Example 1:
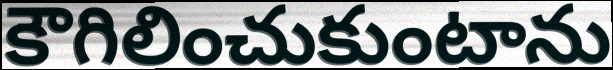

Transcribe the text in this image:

కౌగిలించుకుంటాను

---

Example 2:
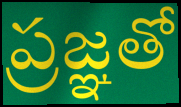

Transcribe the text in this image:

ప్రజ్ఞతో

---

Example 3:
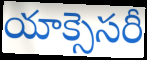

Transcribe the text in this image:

యాక్సెసరీ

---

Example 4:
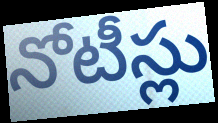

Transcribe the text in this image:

నోటీస్లు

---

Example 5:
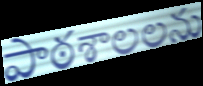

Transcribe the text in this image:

పాఠశాలలను